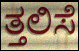
ತ್ತಲಿಸೆ